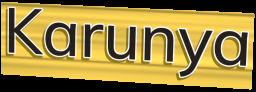
Karunya